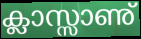
ക്ലാസ്സാണു്